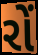
રોં